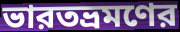
ভারতভ্রমণের